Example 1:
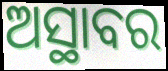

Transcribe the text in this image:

ଅସ୍ଥାବର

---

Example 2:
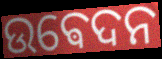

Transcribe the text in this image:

ଉଵେଦନ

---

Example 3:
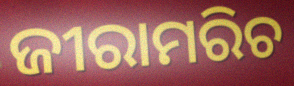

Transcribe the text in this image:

ଜୀରାମରିଚ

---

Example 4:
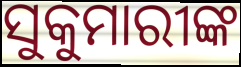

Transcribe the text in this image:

ସୁକୁମାରୀଙ୍କ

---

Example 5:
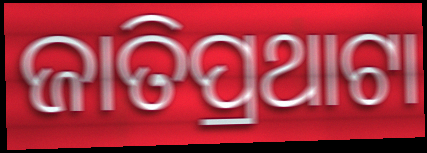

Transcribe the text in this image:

ଜାତିପ୍ରଥାଟା